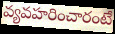
వ్యవహరించారంటే